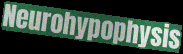
Neurohypophysis